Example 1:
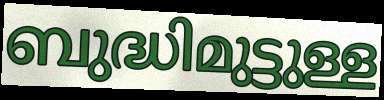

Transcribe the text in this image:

ബുദ്ധിമുട്ടുള്ള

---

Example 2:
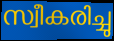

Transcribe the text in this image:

സ്വീകരിച്ചു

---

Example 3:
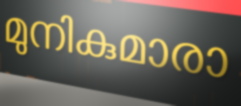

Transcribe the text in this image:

മുനികുമാരാ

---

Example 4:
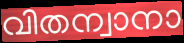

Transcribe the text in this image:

വിതന്വാനാ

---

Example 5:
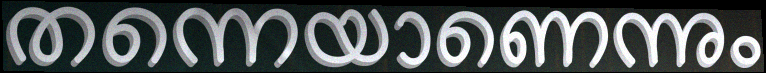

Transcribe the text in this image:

തന്നെയാണെന്നും